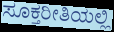
ಸೂಕ್ತರೀತಿಯಲ್ಲಿ